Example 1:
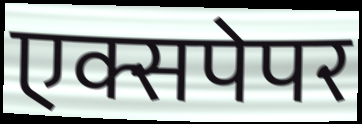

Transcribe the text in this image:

एक्सपेपर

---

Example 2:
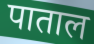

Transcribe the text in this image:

पाताल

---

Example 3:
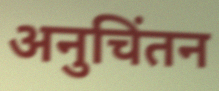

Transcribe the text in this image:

अनुचिंतन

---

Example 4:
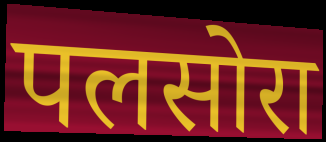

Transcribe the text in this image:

पलसोरा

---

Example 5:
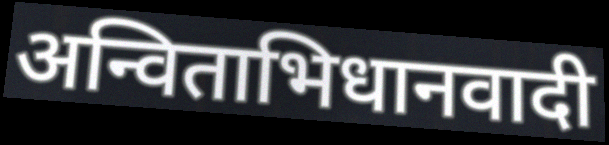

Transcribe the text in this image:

अन्विताभिधानवादी